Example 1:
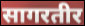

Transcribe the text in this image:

सागरतीर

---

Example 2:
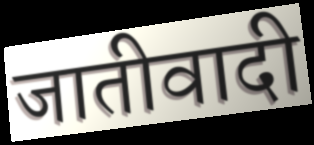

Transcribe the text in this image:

जातीवादी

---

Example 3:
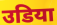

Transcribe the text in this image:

उडिया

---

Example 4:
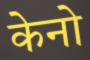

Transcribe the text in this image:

केनो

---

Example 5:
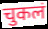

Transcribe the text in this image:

चुकलं